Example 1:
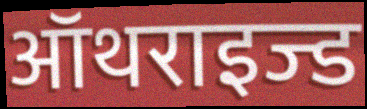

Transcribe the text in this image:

ऑथराइज्ड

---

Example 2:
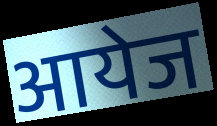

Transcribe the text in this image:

आयेज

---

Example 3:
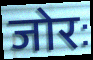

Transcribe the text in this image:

जोरः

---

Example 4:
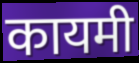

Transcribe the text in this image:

कायमी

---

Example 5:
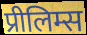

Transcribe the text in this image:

प्रीलिम्स